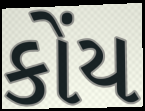
કોંય